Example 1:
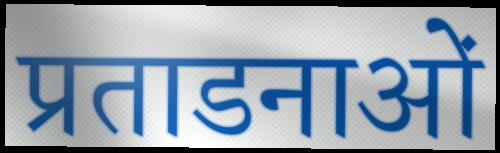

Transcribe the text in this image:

प्रताडनाओं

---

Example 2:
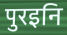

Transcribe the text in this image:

पुरइनि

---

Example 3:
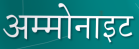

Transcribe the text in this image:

अम्मोनाइट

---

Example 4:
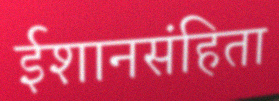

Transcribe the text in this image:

ईशानसंहिता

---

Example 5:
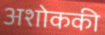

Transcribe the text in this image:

अशोककी